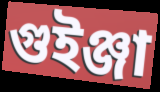
গুইঞ্জা